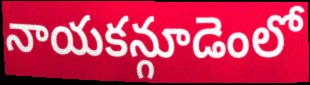
నాయకన్గూడెంలో